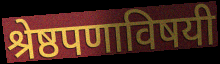
श्रेष्ठपणाविषयी